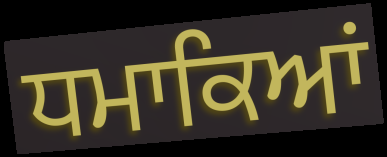
ਧਮਾਕਿਆਂ